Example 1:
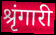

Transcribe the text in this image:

श्रृंगारी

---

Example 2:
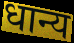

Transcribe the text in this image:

धान्य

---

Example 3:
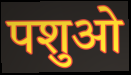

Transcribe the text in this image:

पशुओ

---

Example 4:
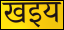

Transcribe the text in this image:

खइय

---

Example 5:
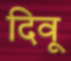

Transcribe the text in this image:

दिवू